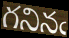
గనినఁ